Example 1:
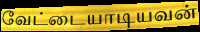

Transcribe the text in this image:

வேட்டையாடியவன்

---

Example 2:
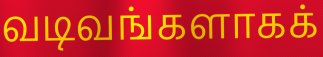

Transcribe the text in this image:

வடிவங்களாகக்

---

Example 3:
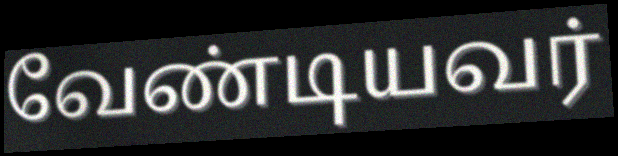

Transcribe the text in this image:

வேண்டியவர்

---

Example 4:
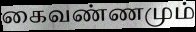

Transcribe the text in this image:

கைவண்ணமும்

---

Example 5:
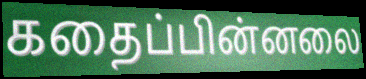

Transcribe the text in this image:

கதைப்பின்னலை